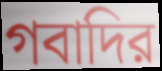
গবাদির